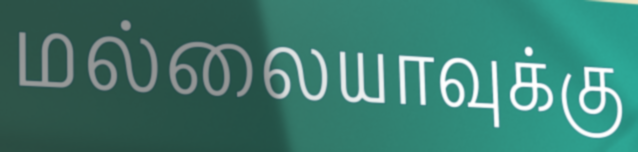
மல்லையாவுக்கு